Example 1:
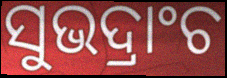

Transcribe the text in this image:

ସୁଭଦ୍ରାଂଚ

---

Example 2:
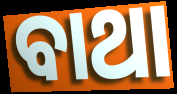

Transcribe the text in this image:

ବାଥା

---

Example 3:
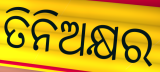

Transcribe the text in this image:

ତିନିଅକ୍ଷର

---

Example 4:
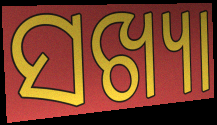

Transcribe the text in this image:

ସଖ୍ୟା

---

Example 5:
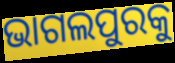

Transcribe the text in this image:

ଭାଗଲପୁରକୁ